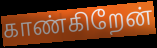
காண்கிறேன்